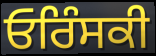
ਓਰਿੰਸਕੀ